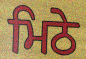
ਮਿਠੇ